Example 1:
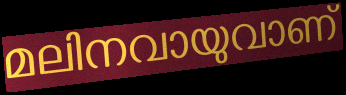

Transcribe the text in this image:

മലിനവായുവാണ്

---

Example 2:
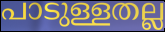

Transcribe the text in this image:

പാടുള്ളതല്ല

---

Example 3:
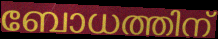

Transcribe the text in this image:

ബോധത്തിന്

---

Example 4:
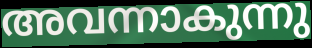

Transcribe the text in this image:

അവന്നാകുന്നു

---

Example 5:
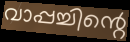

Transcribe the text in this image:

വാപ്പച്ചിന്റെ